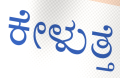
ಕೇಳುತ್ತೆ